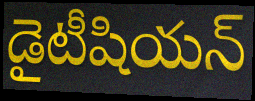
డైటీషియన్